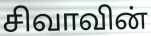
சிவாவின்